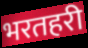
भरतहरी